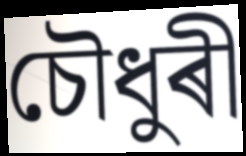
চৌধুৰী